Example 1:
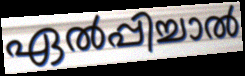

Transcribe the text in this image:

ഏൽപ്പിച്ചാൽ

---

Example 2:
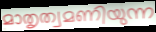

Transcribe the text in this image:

മാതൃത്വമണിയുന്ന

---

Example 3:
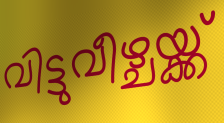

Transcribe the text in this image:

വിട്ടുവീഴ്ചയ്ക്ക്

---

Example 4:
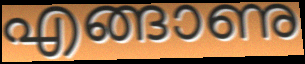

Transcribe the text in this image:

എങ്ങാണു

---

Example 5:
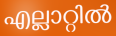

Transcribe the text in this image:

എല്ലാറ്റിൽ